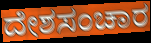
ದೇಶಸಂಚಾರ